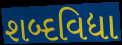
શબ્દવિદ્યા